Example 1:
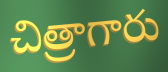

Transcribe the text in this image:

చిత్రాగారు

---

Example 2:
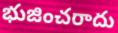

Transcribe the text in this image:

భుజించరాదు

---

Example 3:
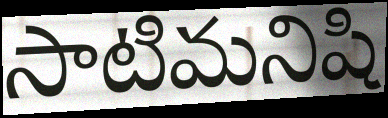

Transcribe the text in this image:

సాటిమనిషి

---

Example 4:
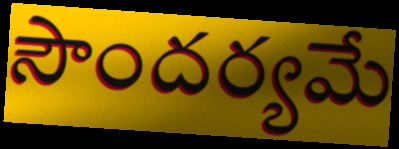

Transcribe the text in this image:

సౌందర్యమే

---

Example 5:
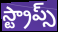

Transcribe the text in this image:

స్ట్రాప్స్